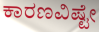
ಕಾರಣವಿಷ್ಟೇ